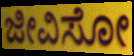
ಜೀವಿಸೋ